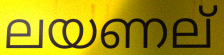
ലയണല്